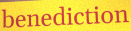
benediction